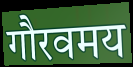
गौरवमय